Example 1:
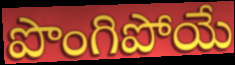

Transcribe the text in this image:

పొంగిపోయే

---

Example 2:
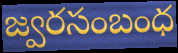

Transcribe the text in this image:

జ్వరసంబంధ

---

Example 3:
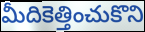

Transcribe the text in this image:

మీదికెత్తించుకొని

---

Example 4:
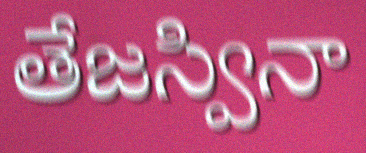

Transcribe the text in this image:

తేజస్వినా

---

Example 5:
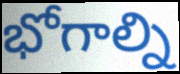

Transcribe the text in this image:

భోగాల్ని